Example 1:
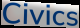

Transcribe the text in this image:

Civics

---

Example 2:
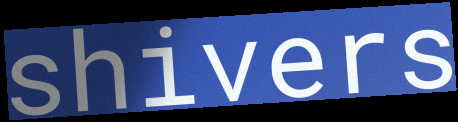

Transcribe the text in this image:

shivers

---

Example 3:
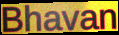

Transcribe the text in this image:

Bhavan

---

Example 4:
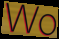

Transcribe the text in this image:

Wo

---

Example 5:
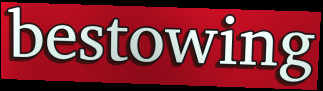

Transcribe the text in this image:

bestowing